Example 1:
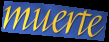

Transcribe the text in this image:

muerte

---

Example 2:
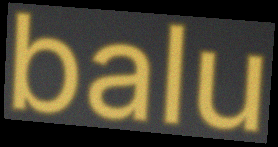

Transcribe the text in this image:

balu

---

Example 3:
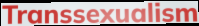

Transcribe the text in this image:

Transsexualism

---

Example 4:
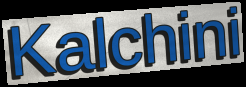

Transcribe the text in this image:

Kalchini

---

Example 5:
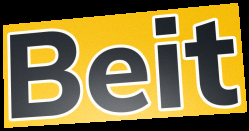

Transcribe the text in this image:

Beit